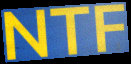
NTF